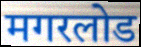
मगरलोड